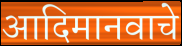
आदिमानवाचे